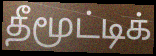
தீமூட்டிக்